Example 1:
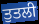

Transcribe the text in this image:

ਤੁਤਲੀ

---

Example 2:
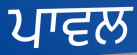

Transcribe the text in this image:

ਪਾਵਲ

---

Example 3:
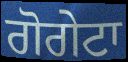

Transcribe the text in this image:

ਗੋਗੇਟਾ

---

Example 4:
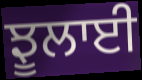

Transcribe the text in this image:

ਝੂਲਾਈ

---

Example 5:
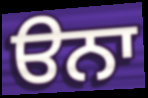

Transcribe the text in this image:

ੳਨਾ